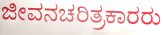
ಜೀವನಚರಿತ್ರಕಾರರು